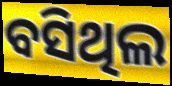
ବସିଥିଲ